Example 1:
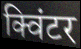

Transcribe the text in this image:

क्विंटर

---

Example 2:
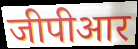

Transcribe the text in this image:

जीपीआर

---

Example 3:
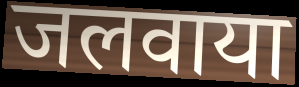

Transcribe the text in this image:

जलवाया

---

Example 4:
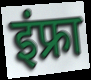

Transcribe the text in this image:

इंफ्रा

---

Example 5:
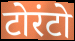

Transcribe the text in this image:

टोरंटो